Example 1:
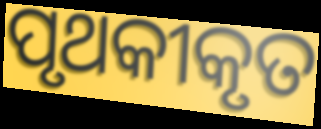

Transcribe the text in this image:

ପୃଥକୀକୃତ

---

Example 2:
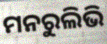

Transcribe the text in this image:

ମନରୁଲିଭି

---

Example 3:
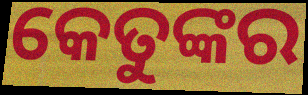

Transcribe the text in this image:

କେତୁଙ୍କର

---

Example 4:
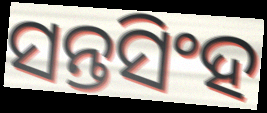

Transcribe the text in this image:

ସନ୍ତସିଂହ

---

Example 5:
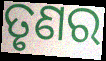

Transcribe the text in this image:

ତୃଣର